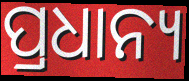
ପ୍ରଧାନ୍ୟ